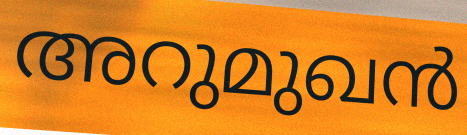
അറുമുഖൻ